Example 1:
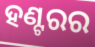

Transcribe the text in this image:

ହଣ୍ଟରର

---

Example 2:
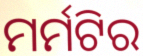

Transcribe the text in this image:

ମର୍ମଟିର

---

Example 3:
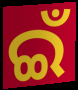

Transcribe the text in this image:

ଇଁ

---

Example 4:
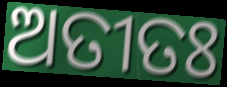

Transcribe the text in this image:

ଅତୀତଃ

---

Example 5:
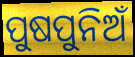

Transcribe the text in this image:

ପୁଷପୁନିଅଁ